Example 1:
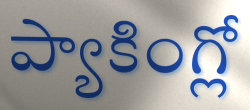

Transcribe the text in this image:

ప్యాకింగ్లో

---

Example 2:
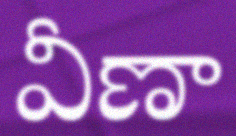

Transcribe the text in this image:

వీణా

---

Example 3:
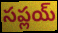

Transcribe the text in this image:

సప్లయ్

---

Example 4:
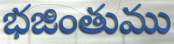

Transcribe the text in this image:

భజింతుము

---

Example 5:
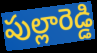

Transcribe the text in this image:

పుల్లారెడ్డి